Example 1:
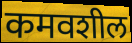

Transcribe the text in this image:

कमवशील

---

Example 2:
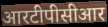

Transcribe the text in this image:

आरटीपीसीआर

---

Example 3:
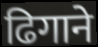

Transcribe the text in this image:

ढिगाने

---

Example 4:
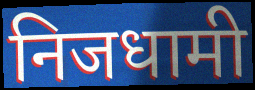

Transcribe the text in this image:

निजधामी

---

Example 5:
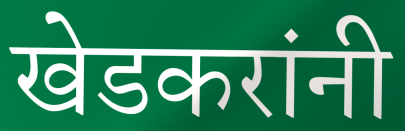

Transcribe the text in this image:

खेडकरांनी